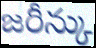
జరీన్కు